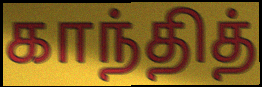
காந்தித்